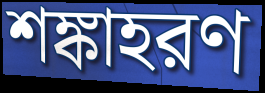
শঙ্কাহরণ